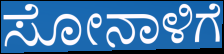
ಸೋನಾಳಿಗೆ